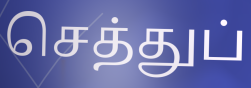
செத்துப்